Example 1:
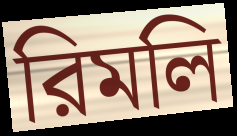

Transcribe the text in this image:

রিমলি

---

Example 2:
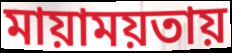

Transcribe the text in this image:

মায়াময়তায়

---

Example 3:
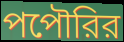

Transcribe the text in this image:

পপৌরির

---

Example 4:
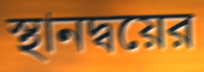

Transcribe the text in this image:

স্থানদ্বয়ের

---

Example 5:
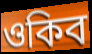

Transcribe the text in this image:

ওকিব